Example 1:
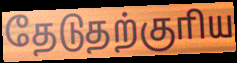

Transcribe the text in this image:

தேடுதற்குரிய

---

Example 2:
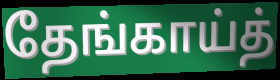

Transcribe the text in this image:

தேங்காய்த்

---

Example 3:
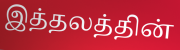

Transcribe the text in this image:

இத்தலத்தின்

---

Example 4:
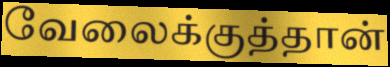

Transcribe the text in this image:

வேலைக்குத்தான்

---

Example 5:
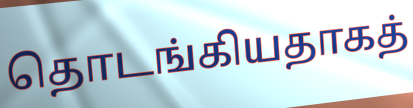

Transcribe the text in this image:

தொடங்கியதாகத்